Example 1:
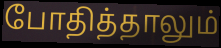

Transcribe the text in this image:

போதித்தாலும்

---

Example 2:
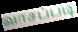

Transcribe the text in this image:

வாசப்படி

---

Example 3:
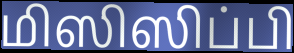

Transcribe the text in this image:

மிஸிஸிப்பி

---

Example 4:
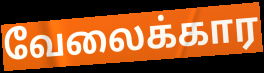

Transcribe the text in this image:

வேலைக்கார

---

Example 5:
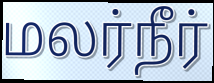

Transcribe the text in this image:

மலர்நீர்